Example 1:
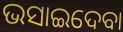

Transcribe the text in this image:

ଭସାଇଦେବା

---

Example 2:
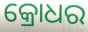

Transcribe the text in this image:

କ୍ରୋଧର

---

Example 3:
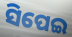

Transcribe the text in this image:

ସିପେଇ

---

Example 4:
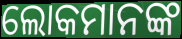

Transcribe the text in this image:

ଲୋକମାନଙ୍କ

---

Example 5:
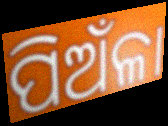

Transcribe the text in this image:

ପିଅଁଳା